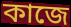
কাজে